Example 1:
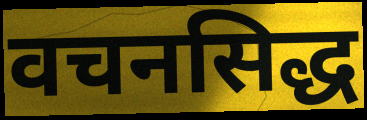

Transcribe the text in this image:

वचनसिद्ध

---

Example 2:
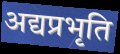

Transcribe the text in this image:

अद्यप्रभृति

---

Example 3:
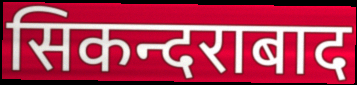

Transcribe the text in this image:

सिकन्दराबाद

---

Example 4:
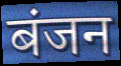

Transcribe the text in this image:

बंजन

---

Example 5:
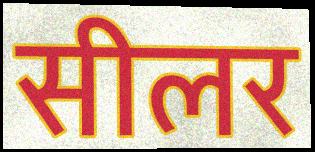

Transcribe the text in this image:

सीलर